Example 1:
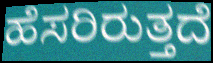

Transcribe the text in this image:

ಹೆಸರಿರುತ್ತದೆ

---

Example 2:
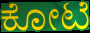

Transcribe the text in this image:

ಕೋಟೆ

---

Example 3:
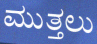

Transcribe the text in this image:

ಮುತ್ತಲು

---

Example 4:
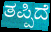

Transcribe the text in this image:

ತಪ್ಪಿದೆ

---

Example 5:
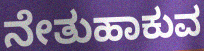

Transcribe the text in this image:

ನೇತುಹಾಕುವ